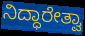
ನಿದ್ಧಾರೇತ್ವಾ